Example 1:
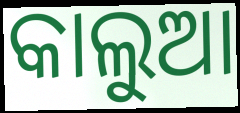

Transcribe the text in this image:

କାଲୁଆ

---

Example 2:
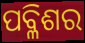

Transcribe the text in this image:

ପବ୍ଳିଶର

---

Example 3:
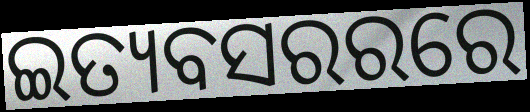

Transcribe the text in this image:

ଇତ୍ୟବସରରରେ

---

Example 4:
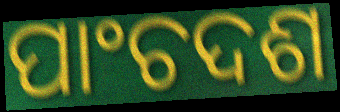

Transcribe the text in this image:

ପାଂଚଦଶ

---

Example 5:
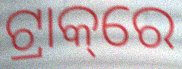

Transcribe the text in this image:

ଟ୍ରାକ୍‌ରେ